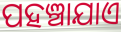
ପହଞ୍ଚାଯାଏ